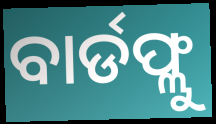
ବାର୍ଡଫ୍ଲୁ